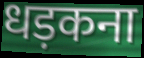
धड़कना